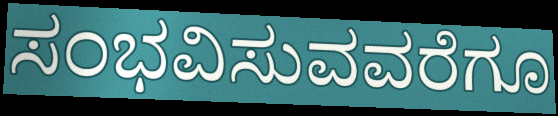
ಸಂಭವಿಸುವವರೆಗೂ